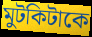
মুটকিটাকে